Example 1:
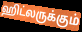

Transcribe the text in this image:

ஹிட்லருக்கும்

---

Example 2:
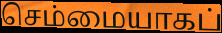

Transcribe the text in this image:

செம்மையாகப்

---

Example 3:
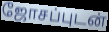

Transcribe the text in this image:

ஜோசப்புடன்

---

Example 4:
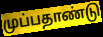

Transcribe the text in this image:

முப்பதாண்டு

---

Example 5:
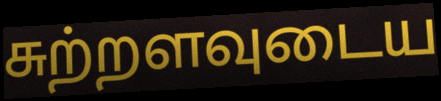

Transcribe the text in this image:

சுற்றளவுடைய